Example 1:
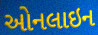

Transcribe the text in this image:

ઓનલાઇન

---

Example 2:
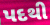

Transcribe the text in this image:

પદથી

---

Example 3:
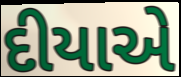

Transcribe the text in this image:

દીયાએ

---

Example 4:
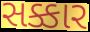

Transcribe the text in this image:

સક્કાર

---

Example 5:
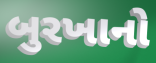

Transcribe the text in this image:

બુરખાનો